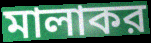
মালাকর